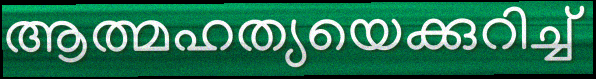
ആത്മഹത്യയെക്കുറിച്ച്